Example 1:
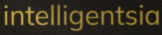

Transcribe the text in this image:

intelligentsia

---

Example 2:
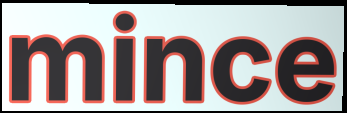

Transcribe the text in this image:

mince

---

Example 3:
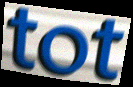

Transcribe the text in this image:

tot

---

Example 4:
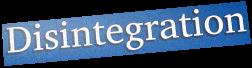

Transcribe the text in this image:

Disintegration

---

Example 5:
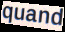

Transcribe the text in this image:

quand